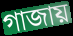
গাজায়